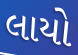
લાયો